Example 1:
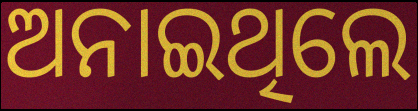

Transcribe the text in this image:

ଅନାଇଥିଲେ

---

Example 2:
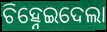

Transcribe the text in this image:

ଚିହ୍ନେଇଦେଲା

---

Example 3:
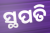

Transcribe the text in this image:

ସ୍ଥପତି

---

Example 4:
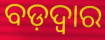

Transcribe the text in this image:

ବଡ଼ଦ୍ୱାର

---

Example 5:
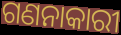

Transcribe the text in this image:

ଗଣନାକାରୀ